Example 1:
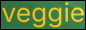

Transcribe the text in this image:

veggie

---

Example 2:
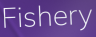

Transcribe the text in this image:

Fishery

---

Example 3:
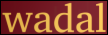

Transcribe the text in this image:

wadal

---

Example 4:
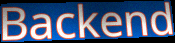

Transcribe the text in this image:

Backend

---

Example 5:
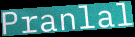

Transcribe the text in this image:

Pranlal